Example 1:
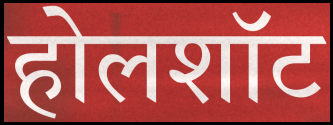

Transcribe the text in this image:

होलशॉट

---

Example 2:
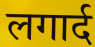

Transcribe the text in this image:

लगार्द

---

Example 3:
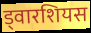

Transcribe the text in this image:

ड्वारशियस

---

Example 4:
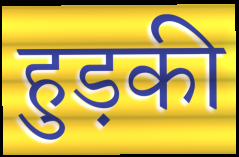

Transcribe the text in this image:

हुड़की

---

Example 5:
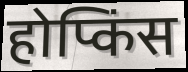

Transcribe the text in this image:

होप्किंस